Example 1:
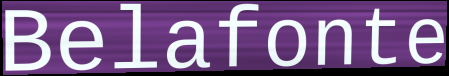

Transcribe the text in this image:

Belafonte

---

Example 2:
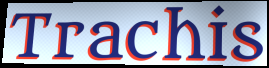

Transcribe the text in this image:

Trachis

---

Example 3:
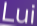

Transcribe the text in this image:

Lui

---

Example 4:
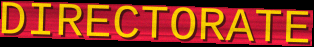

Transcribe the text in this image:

DIRECTORATE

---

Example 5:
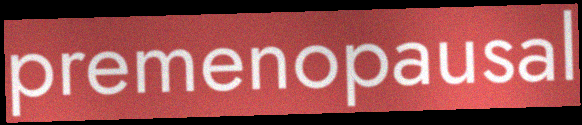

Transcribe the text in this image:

premenopausal